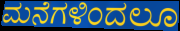
ಮನೆಗಳಿಂದಲೂ